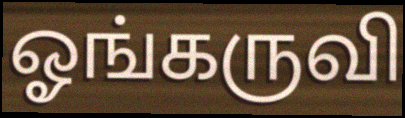
ஓங்கருவி